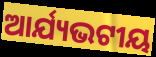
ଆର୍ଯ୍ୟଭଟୀୟ